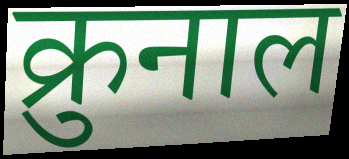
क्रुनाल